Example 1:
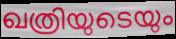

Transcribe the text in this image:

ഖത്രിയുടെയും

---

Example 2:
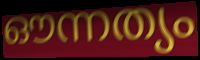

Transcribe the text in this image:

ഔന്നത്യം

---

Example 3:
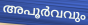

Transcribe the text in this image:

അപൂർവവും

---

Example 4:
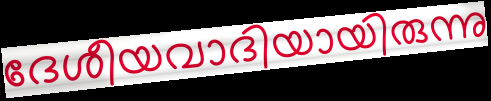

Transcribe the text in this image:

ദേശീയവാദിയായിരുന്നു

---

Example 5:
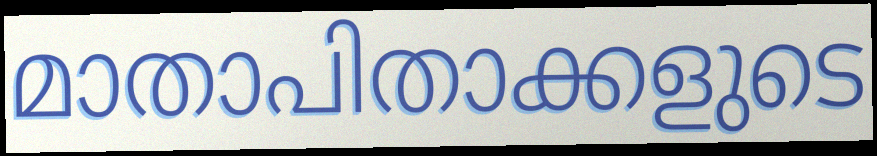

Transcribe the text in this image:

മാതാപിതാക്കളുടെ